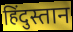
हिंदुस्‍तान